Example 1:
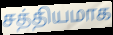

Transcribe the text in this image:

சத்தியமாக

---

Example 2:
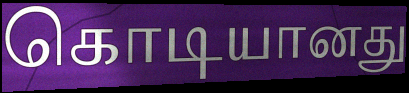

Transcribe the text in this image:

கொடியானது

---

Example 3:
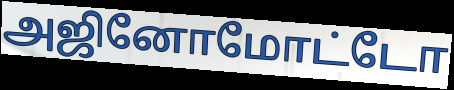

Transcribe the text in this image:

அஜினோமோட்டோ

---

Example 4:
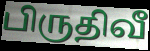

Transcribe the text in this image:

பிருதிவீ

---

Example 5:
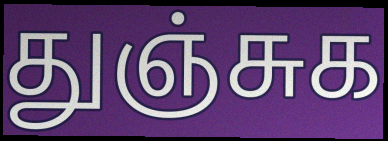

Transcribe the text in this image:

துஞ்சுக